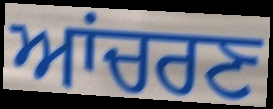
ਆਂਚਰਣ